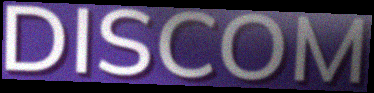
DISCOM